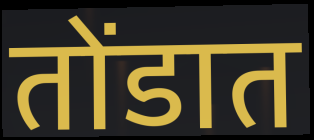
तोंडात